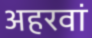
अहरवां